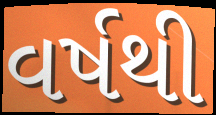
વર્ષથી